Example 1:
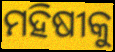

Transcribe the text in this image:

ମହିଷୀକୁ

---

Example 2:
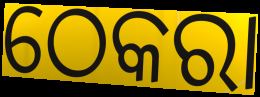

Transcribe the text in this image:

ଠେକରା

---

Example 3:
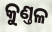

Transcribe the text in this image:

କୁଣ୍ତଳ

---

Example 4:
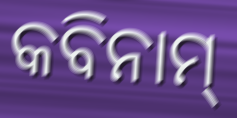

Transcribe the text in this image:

କବିନାମ୍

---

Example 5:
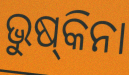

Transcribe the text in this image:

ଭୁଷ୍‌କିନା